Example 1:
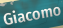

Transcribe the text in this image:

Giacomo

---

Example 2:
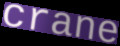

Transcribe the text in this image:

crane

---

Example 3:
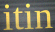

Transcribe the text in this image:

itin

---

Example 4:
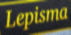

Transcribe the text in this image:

Lepisma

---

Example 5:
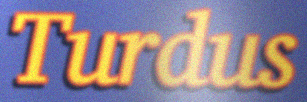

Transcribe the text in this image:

Turdus